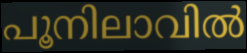
പൂനിലാവിൽ